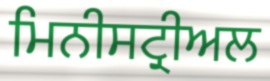
ਮਿਨੀਸਟ੍ਰੀਅਲ